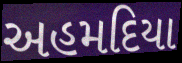
અહમદિયા